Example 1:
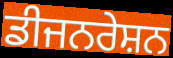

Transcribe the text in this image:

ਡੀਜਨਰੇਸ਼ਨ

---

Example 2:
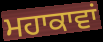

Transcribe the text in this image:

ਮਹਾਕਾਵਾਂ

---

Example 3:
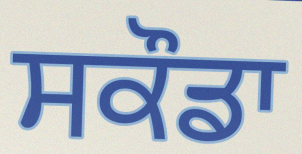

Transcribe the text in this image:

ਸਕੌਡਾ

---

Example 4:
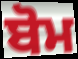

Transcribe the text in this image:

ਬੋਮ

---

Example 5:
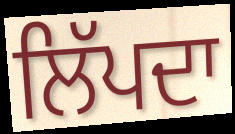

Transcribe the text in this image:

ਲਿੱਪਦਾ